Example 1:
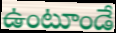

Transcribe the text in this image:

ఉంటూండే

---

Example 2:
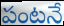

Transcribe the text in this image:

పంటనే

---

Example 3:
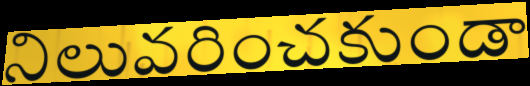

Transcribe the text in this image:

నిలువరించకుండా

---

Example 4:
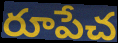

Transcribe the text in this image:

రూపేచ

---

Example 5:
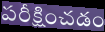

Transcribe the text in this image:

పరీక్షించడం